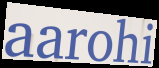
aarohi